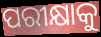
ପରୀକ୍ଷାକୁ